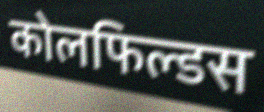
कोलफिल्डस